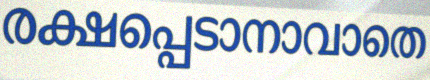
രക്ഷപ്പെടാനാവാതെ